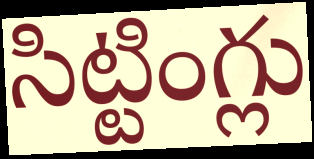
సిట్టింగ్లు